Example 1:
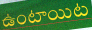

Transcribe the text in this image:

ఉంటాయిట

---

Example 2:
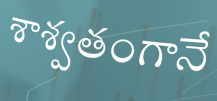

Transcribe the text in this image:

శాశ్వతంగానే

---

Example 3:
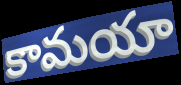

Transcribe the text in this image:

కామయా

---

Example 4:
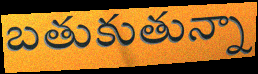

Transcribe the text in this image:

బతుకుతున్నా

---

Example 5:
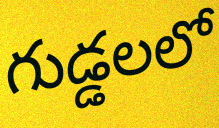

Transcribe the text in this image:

గుడ్డలలో